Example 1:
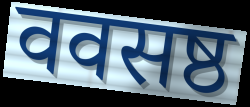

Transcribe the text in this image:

ववसष्ठ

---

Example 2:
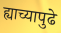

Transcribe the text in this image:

ह्याच्यापुढे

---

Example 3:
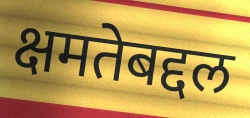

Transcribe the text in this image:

क्षमतेबद्दल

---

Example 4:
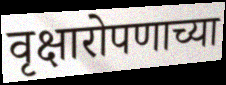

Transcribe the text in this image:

वृक्षारोपणाच्या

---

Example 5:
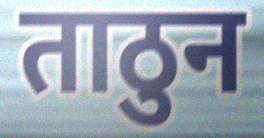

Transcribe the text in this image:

ताठुन